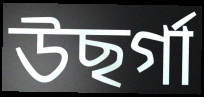
উছৰ্গা